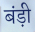
बंड़ी